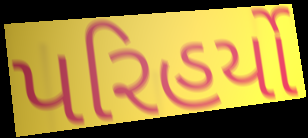
પરિહર્યો